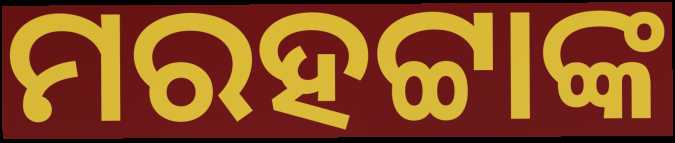
ମରହଟ୍ଟାଙ୍କ